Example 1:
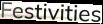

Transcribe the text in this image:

Festivities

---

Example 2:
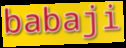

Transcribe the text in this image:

babaji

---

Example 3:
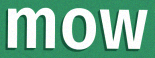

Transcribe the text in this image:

mow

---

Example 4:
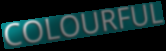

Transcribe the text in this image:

COLOURFUL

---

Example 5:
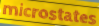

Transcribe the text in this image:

microstates